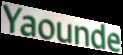
Yaounde